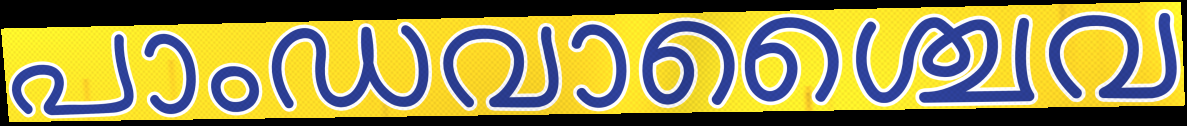
പാംഡവാശ്ചൈവ